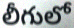
లీగులో